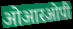
ओआरओपी